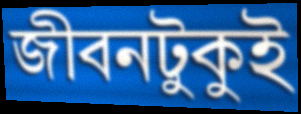
জীবনটুকুই